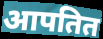
आपतित